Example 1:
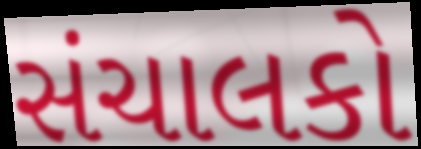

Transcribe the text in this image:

સંચાલકો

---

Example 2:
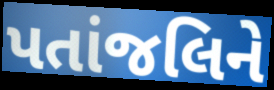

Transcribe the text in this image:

પતાંજલિને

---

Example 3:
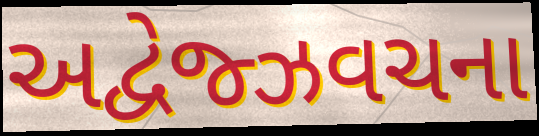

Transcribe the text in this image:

અદ્વેજ્ઝવચના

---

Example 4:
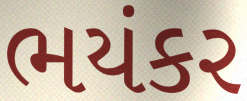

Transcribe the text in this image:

ભયંકર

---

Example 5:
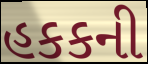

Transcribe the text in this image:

હકકની